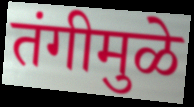
तंगीमुळे